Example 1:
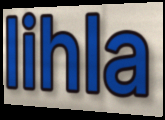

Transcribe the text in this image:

lihla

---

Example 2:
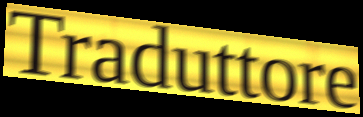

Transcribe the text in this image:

Traduttore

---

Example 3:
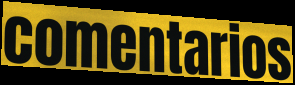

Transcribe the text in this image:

comentarios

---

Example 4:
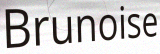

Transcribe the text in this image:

Brunoise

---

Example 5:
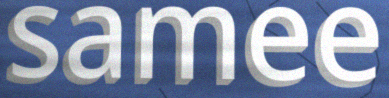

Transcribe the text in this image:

samee